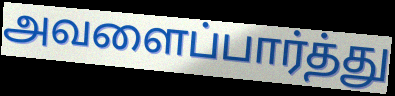
அவளைப்பார்த்து